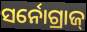
ସର୍ନୋଗ୍ରାଜ୍